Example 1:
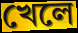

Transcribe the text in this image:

খেলে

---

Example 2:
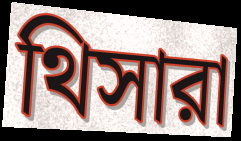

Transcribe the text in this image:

থিসারা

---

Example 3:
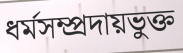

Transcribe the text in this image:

ধর্মসম্প্রদায়ভুক্ত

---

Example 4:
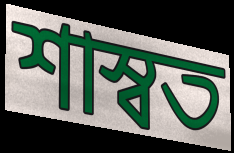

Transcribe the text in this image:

শাস্বত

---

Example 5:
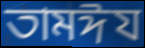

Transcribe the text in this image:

তামঈয